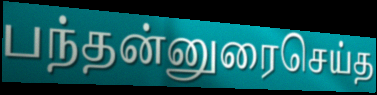
பந்தன்னுரைசெய்த